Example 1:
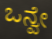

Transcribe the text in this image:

ಒನ್ವೇ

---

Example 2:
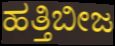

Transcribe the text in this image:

ಹತ್ತಿಬೀಜ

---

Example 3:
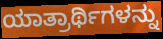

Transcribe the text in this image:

ಯಾತ್ರಾರ್ಥಿಗಳನ್ನು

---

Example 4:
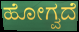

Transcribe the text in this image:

ಹೋಗ್ವದೆ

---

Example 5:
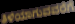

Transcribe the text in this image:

ತಿಳಿಯಾಗುವವರೆಗೆ